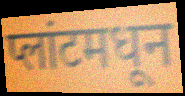
प्लांटमधून